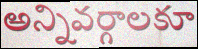
అన్నివర్గాలకూ